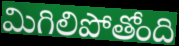
మిగిలిపోతోంది